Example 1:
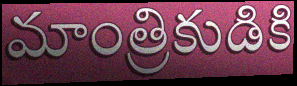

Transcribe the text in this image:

మాంత్రికుడికి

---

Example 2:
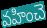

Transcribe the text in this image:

వహించె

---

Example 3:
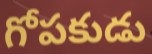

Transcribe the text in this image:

గోపకుడు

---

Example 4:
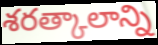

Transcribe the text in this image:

శరత్కాలాన్ని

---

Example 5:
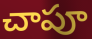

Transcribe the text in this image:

చాపూ